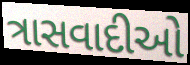
ત્રાસવાદીઓ